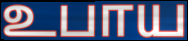
உபாய